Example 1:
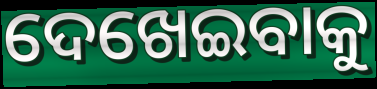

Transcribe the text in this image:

ଦେଖେଇବାକୁ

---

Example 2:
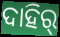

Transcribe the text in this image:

ଦାହିର୍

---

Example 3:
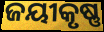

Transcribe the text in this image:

ଜୟୀକୃଷ୍ଣ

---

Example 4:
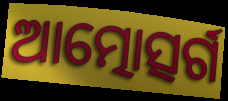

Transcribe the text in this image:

ଆତ୍ମୋତ୍ସର୍ଗ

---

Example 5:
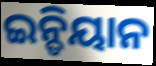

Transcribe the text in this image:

ଇନ୍ଡିୟାନ